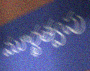
మూర్ఖత్వపు